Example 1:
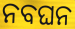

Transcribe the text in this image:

ନବଘନ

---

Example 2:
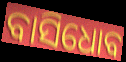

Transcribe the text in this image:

ବାସିଧୋବ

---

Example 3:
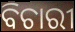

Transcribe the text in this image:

ବିଚାରୀ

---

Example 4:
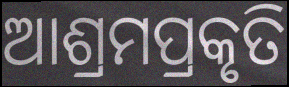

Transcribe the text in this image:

ଆଶ୍ରମପ୍ରକୃତି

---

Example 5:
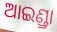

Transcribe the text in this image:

ଆଇଣ୍ଡ୍ରା